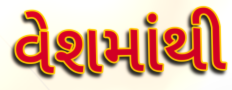
વેશમાંથી